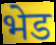
भेड